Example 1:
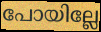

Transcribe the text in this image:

പോയില്ലേ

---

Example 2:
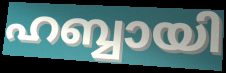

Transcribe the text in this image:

ഹബ്ബായി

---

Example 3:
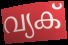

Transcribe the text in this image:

വ്യക്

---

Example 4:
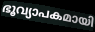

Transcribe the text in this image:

ഭൂവ്യാപകമായി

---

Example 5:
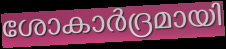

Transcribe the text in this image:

ശോകാർദ്രമായി